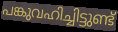
പങ്കുവഹിച്ചിട്ടുണ്ട്